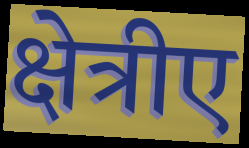
क्षेत्रीए